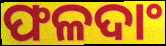
ଫଳଦାଂ